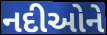
નદીઓને